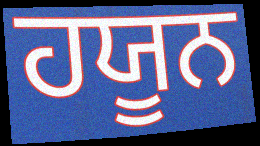
ਹਯੂਨ